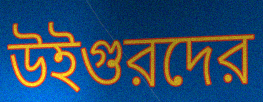
উইগুরদের